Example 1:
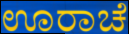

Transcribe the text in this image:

ಊರಾಚೆ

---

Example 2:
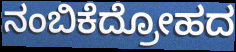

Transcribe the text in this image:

ನಂಬಿಕೆದ್ರೋಹದ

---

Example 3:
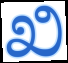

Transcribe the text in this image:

ಖಿ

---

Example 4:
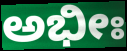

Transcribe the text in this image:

ಅಭೀಃ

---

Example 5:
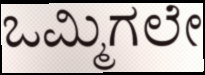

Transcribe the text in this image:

ಒಮ್ಮಿಗಲೇ